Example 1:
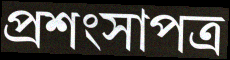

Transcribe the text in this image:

প্রশংসাপত্র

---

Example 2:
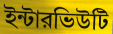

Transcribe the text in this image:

ইন্টারভিউটি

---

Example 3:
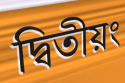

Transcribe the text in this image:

দ্বিতীয়ং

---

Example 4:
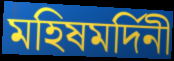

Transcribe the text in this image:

মহিষমর্দিনী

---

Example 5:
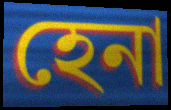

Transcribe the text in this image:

হেনা